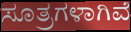
ಸೂತ್ರಗಳಾಗಿವೆ